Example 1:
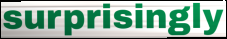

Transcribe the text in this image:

surprisingly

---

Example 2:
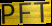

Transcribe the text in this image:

PFT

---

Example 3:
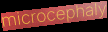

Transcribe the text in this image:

microcephaly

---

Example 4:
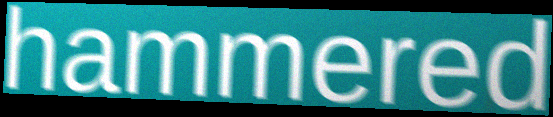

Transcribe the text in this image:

hammered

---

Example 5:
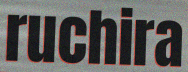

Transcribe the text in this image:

ruchira